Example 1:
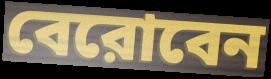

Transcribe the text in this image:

বেরোবেন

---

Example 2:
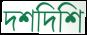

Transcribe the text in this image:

দশদিশি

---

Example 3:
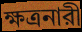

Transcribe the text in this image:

ক্ষত্রনারী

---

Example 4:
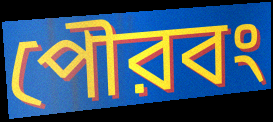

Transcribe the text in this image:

পৌরবং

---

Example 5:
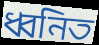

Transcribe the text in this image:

ধ্বনিত